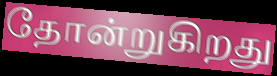
தோன்றுகிறது